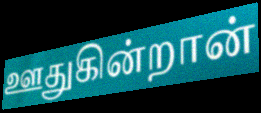
ஊதுகின்றான்